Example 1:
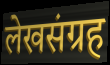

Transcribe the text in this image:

लेखसंग्रह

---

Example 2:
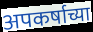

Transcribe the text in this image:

अपकर्षाच्या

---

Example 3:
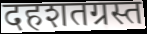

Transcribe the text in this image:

दहशतग्रस्त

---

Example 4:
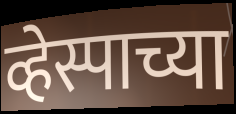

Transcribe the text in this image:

व्हेस्पाच्या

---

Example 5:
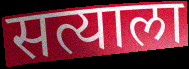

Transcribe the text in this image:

सत्याला